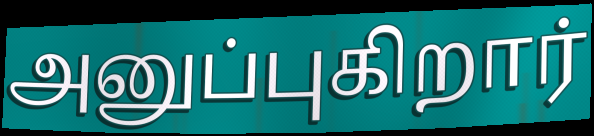
அனுப்புகிறார்